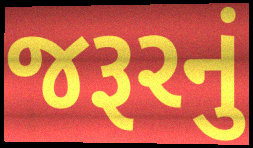
જરૂરનું